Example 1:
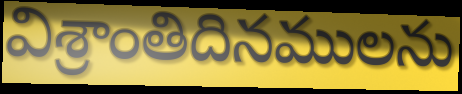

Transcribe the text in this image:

విశ్రాంతిదినములను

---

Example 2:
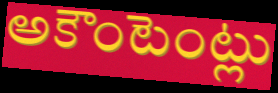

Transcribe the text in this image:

అకౌంటెంట్లు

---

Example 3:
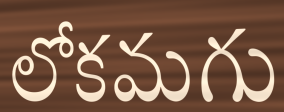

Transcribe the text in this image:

లోకమగు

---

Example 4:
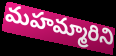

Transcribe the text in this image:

మహమ్మారిని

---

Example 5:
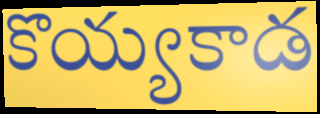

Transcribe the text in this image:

కొయ్యకాడ